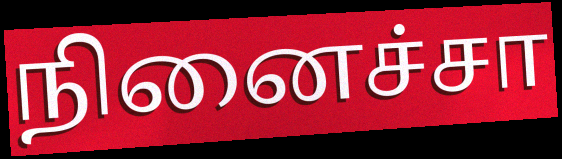
நினைச்சா